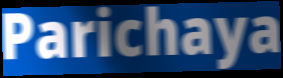
Parichaya